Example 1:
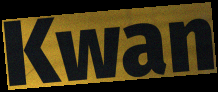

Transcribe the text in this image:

Kwan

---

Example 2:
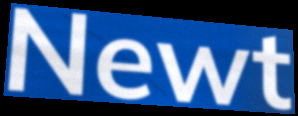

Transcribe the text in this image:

Newt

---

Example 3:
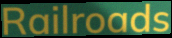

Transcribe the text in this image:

Railroads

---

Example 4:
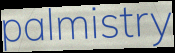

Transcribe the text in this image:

palmistry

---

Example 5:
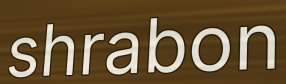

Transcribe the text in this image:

shrabon